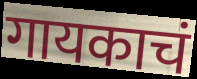
गायकाचं